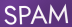
SPAM